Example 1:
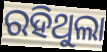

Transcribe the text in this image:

ରହିଥୁଲା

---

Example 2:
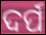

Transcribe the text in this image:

ଦର୍ପ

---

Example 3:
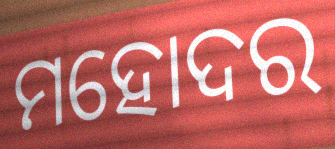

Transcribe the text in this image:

ମହୋଦର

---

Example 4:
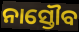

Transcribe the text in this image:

ନାସ୍ତୌବ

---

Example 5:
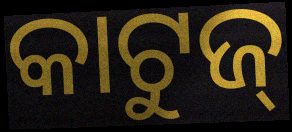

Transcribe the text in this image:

କାଟୁଜ୍